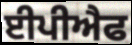
ਈਪੀਐਫ